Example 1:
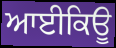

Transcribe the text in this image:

ਆਈਕਿਊ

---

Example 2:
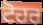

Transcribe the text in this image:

ਟੋਹਰ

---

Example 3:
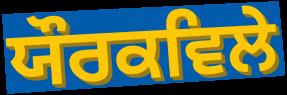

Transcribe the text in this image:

ਯੌਰਕਵਿਲੇ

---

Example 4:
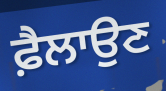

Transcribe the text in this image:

ਫ਼ੈਲਾਉਣ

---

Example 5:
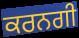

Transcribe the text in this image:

ਕਰਨਗੀ